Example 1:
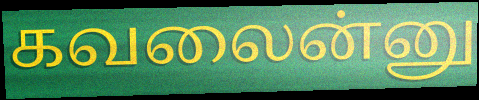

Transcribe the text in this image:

கவலைன்னு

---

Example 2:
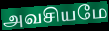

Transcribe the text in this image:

அவசியமே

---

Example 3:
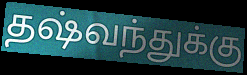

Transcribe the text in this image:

தஷ்வந்துக்கு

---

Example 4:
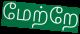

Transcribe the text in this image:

மேற்றே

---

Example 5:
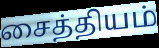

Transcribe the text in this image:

சைத்தியம்